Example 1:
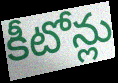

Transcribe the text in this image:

కీటోన్లు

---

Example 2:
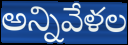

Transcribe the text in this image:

అన్నివేళల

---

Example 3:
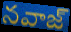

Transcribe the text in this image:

నవాజ్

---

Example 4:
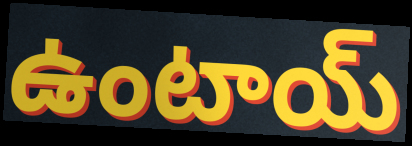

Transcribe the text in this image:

ఉంటాయ్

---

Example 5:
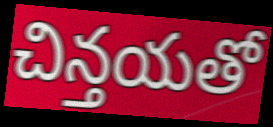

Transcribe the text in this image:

చిన్తయతో